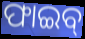
ଫାଇବ୍